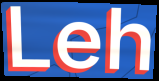
Leh